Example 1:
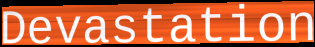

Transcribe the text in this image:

Devastation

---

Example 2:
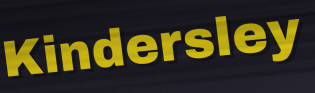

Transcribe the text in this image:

Kindersley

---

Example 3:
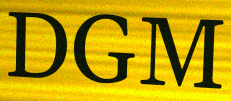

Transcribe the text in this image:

DGM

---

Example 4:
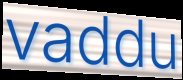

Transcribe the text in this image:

vaddu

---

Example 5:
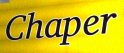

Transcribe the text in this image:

Chaper